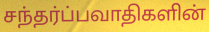
சந்தர்ப்பவாதிகளின்